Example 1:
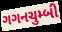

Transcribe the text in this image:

ગગનચુમ્બી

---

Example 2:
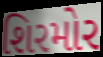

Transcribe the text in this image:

શિરમોર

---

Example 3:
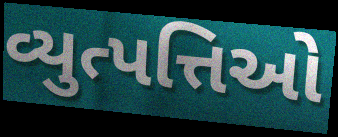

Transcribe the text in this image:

વ્યુત્પત્તિઓ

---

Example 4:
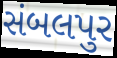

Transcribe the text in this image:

સંબલપુર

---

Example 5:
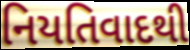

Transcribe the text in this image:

નિયતિવાદથી